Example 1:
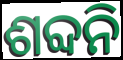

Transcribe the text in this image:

ଶବ୍ଦନି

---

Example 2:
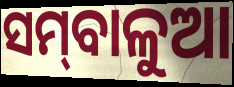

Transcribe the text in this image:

ସମ୍‌ବାଳୁଆ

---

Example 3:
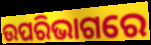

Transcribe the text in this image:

ଉପରିଭାଗରେ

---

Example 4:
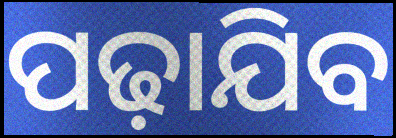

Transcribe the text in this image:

ପଢ଼ାଯିବ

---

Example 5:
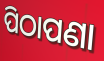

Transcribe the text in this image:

ପିଠାପଣା